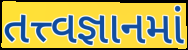
તત્ત્વજ્ઞાનમાં